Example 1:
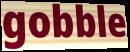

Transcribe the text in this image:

gobble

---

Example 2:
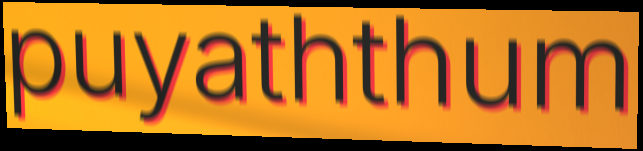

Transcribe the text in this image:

puyaththum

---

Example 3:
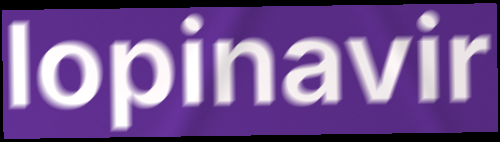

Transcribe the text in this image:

lopinavir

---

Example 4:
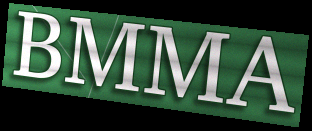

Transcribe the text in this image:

BMMA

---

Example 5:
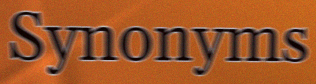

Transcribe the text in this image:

Synonyms